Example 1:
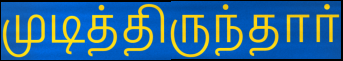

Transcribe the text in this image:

முடித்திருந்தார்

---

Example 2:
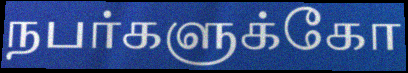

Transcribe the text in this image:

நபர்களுக்கோ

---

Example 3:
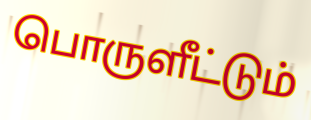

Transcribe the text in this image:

பொருளீட்டும்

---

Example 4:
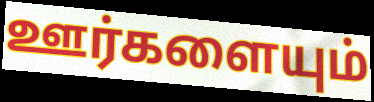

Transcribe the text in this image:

ஊர்களையும்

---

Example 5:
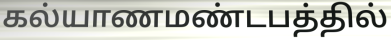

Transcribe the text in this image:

கல்யாணமண்டபத்தில்